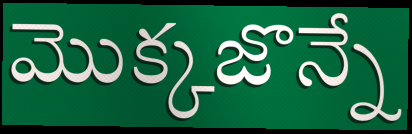
మొక్కజొన్నే